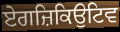
ਏਗਜ਼ਿਕਿਉਟਿਵ